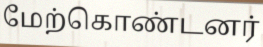
மேற்கொண்டனர்